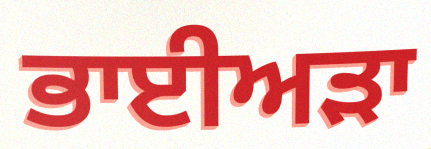
ਭਾਈਅੜਾ